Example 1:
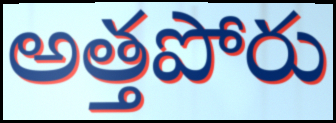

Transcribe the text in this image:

అత్తపోరు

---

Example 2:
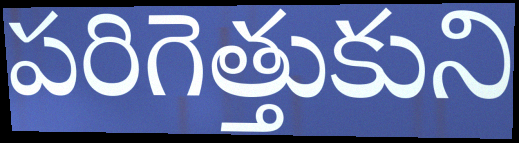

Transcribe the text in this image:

పరిగెత్తుకుని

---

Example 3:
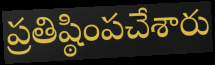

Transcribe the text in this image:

ప్రతిష్ఠింపచేశారు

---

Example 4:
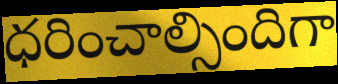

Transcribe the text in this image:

ధరించాల్సిందిగా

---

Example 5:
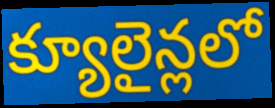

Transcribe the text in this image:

క్యూలైన్లలో